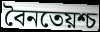
বৈনতেয়শ্চ